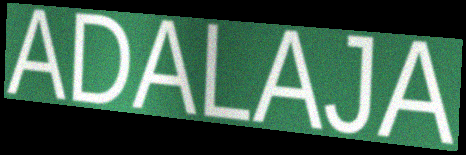
ADALAJA